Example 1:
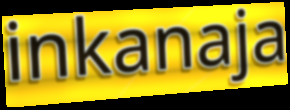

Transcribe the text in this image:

inkanaja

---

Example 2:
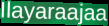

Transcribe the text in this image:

Ilayaraajaa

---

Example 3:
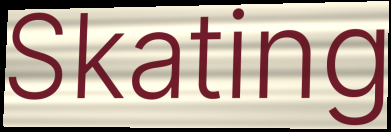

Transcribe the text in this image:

Skating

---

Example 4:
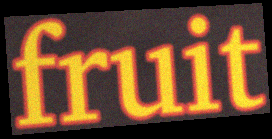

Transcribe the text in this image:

fruit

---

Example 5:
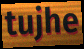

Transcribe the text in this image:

tujhe